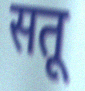
सतू